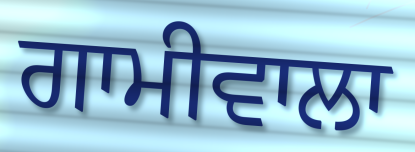
ਗਾਮੀਵਾਲਾ